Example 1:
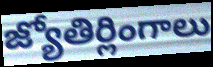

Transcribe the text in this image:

జ్యోతిర్లింగాలు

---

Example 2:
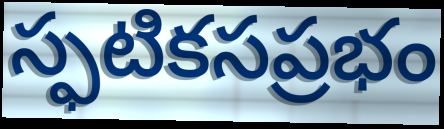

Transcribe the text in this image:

స్ఫటికసప్రభం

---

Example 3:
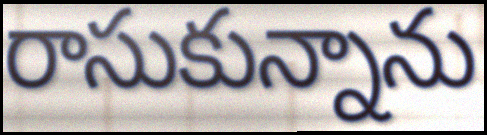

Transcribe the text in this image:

రాసుకున్నాను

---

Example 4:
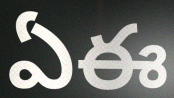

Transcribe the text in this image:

ఏఈ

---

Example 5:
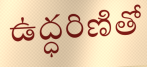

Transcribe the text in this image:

ఉద్ధరిణితో